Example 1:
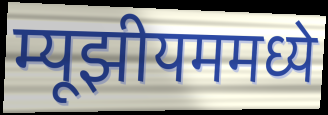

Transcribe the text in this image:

म्यूझीयममध्ये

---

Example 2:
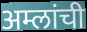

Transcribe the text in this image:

अम्‍लांची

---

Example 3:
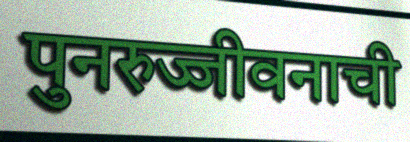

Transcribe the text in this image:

पुनरुज्जीवनाची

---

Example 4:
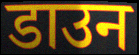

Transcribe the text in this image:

डाउन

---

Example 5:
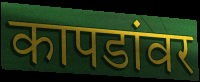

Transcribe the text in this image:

कापडांवर